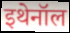
इथेनॉल